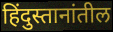
हिंदुस्तानांतील